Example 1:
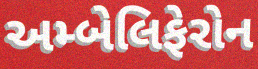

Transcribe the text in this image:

અમ્બેલિફેરોન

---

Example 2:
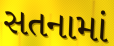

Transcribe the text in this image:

સતનામાં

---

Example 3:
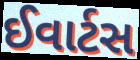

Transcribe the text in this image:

ઈવાર્ટસ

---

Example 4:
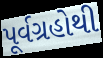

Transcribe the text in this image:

પૂર્વગ્રહોથી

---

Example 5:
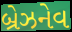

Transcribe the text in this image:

બ્રેઝનેવ